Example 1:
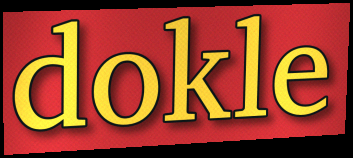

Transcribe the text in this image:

dokle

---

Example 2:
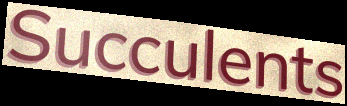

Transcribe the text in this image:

Succulents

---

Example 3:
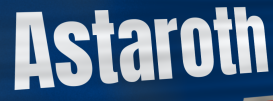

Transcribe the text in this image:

Astaroth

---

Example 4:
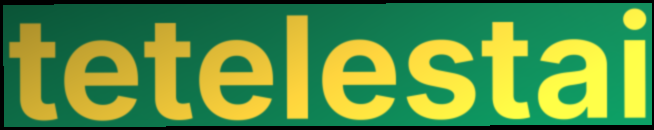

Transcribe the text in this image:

tetelestai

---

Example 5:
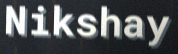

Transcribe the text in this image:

Nikshay